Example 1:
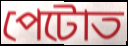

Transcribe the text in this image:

পেটোত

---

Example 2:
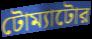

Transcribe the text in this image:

টোম্যাটোর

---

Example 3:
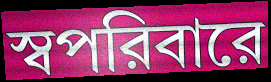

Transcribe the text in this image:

স্বপরিবারে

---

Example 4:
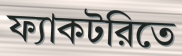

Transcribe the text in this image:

ফ্যাকটরিতে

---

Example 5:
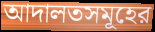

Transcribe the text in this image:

আদালতসমূহের